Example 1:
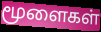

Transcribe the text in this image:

மூளைகள்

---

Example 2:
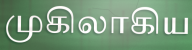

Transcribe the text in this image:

முகிலாகிய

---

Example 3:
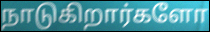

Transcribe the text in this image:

நாடுகிறார்களோ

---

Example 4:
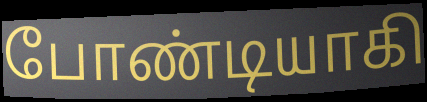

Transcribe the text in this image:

போண்டியாகி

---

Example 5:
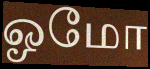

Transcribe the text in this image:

ஓமோ